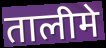
तालीमे